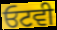
ਓਟਵੀ